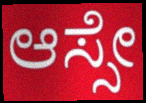
ಆಸ್ಸೇ